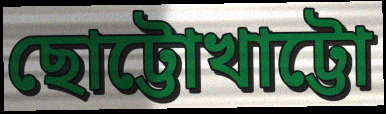
ছোট্টোখাট্টো